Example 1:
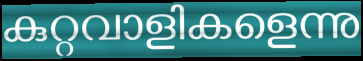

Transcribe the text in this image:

കുറ്റവാളികളെന്നു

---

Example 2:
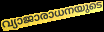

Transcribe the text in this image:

വ്യാജാരാധനയുടെ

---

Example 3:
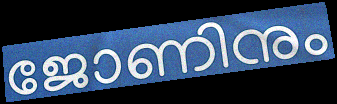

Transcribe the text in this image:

ജോണിനും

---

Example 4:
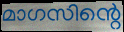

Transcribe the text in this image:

മാഗസിന്റെ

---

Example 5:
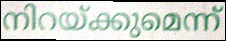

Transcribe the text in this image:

നിറയ്ക്കുമെന്ന്